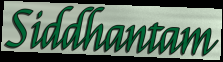
Siddhantam